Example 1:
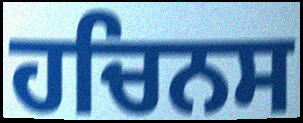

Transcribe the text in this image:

ਹਚਿਨਸ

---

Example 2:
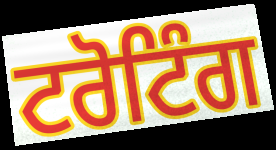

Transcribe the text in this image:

ਟਰੋਟਿੰਗ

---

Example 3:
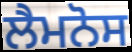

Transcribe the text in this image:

ਲੈਮਨੋਸ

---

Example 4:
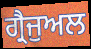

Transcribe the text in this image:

ਗ੍ਰੈਜੁਅਲ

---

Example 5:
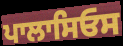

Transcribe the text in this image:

ਪਾਲਾਸਿਓਸ